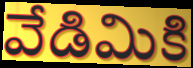
వేడిమికి